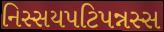
નિસ્સયપટિપન્નસ્સ